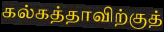
கல்கத்தாவிற்குத்